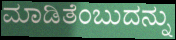
ಮಾಡಿತೆಂಬುದನ್ನು